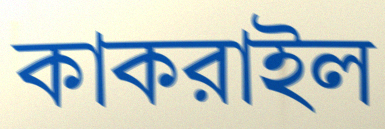
কাকরাইল